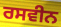
ਰਸਵੀਨ